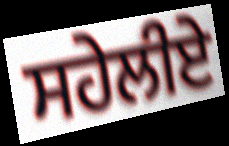
ਸਹੇਲੀਏ